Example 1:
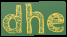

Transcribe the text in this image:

dhe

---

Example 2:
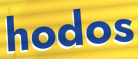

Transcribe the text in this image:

hodos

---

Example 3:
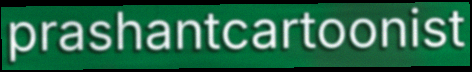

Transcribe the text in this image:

prashantcartoonist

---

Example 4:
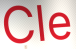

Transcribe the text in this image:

Cle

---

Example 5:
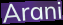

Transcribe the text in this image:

Arani